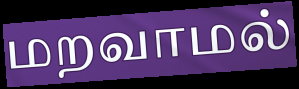
மறவாமல்